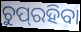
ଚୁପ୍‌ରହିବା